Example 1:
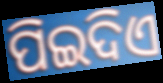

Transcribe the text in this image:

ପିଇଦିଏ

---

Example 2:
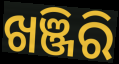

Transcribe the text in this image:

ଖଞ୍ଜିରି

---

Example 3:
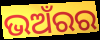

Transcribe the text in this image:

ଭଅଁରର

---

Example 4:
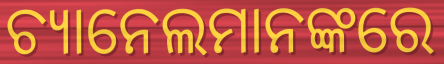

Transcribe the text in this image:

ଚ୍ୟାନେଲମାନଙ୍କରେ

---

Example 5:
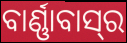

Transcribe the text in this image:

ବାର୍ଣ୍ଣାବାସ୍‌ର